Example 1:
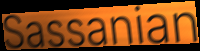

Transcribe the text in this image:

Sassanian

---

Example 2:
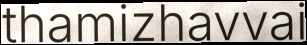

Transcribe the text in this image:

thamizhavvai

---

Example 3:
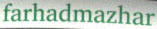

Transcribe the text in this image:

farhadmazhar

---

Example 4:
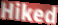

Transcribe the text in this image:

Hiked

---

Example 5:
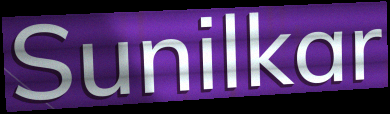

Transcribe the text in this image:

Sunilkar